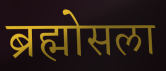
ब्रह्मोसला